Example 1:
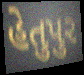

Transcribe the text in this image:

હેતુપુર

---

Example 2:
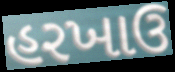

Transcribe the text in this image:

હરખાઉ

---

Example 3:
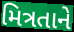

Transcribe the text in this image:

મિત્રતાને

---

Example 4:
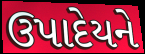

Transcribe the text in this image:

ઉપાદેયને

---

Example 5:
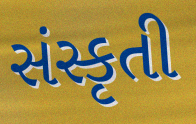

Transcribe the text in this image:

સંસ્કૃતી